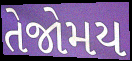
તેજોમય